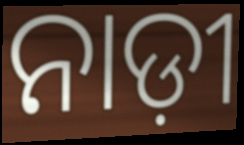
ନାଡ଼ୀ